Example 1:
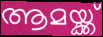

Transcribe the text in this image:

ആമയ്ക്ക്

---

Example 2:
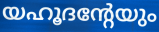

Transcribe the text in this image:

യഹൂദന്റേയും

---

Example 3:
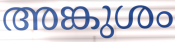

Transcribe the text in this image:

അങ്കുശം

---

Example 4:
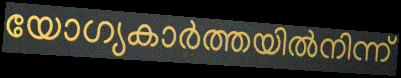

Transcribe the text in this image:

യോഗ്യകാർത്തയിൽനിന്ന്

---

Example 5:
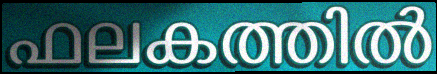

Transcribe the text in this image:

ഫലകത്തിൽ